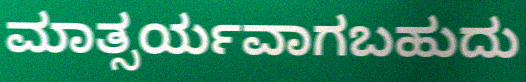
ಮಾತ್ಸರ್ಯವಾಗಬಹುದು